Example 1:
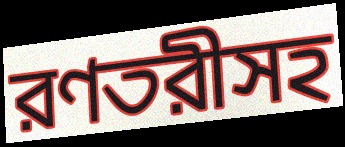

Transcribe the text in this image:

রণতরীসহ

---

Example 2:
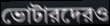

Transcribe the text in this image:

ভোটারদেরও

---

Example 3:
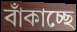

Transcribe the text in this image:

বাঁকাচ্ছে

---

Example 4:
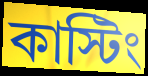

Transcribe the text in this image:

কাস্টিং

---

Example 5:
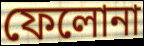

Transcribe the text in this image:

ফেলোনা